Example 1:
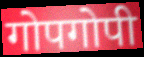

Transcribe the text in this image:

गोपगोपी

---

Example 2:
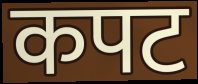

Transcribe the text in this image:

कपट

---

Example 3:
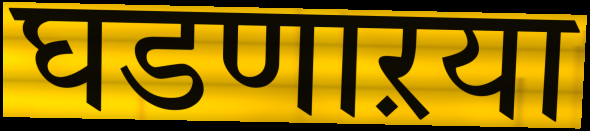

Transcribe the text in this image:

घडणाऱया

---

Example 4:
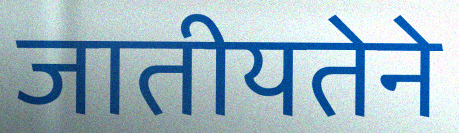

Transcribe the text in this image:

जातीयतेने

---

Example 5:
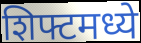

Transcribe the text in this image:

शिफ्टमध्ये